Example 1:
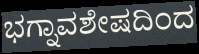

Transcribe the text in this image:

ಭಗ್ನಾವಶೇಷದಿಂದ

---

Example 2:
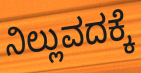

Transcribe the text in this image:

ನಿಲ್ಲುವದಕ್ಕೆ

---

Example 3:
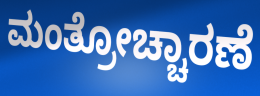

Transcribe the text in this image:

ಮಂತ್ರೋಚ್ಚಾರಣೆ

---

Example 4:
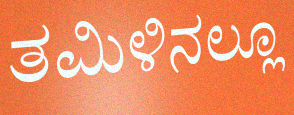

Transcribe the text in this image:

ತಮಿಳಿನಲ್ಲೂ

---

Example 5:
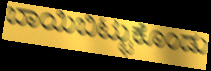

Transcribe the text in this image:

ಬಾಯಿಬಿಟ್ಟುಕೊಂಡು